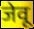
जेवू